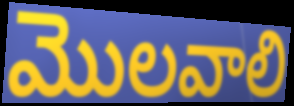
మొలవాలి